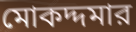
মোকদ্দমার